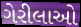
ગેરીલાઓ